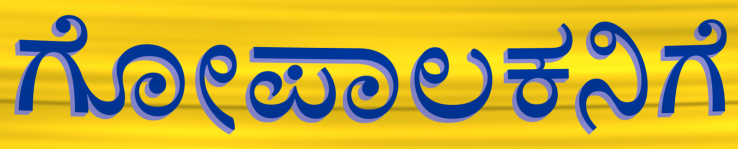
ಗೋಪಾಲಕನಿಗೆ